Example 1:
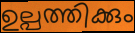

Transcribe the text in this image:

ഉല്പത്തിക്കും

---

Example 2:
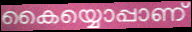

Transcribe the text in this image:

കൈയ്യൊപ്പാണ്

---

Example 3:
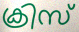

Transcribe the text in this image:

ക്രിസ്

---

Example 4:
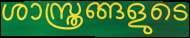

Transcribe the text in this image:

ശാസ്ത്രങ്ങളുടെ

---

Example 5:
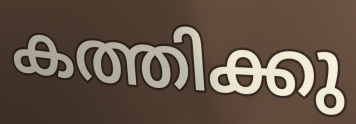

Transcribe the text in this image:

കത്തിക്കു